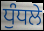
ਧੁੰਧਲੇ